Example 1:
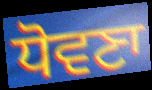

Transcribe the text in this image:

ਧੋਵਣਾ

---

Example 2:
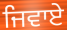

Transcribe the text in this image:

ਜਿਵਾਏ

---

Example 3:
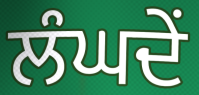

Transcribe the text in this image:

ਲੰਘਦੇਂ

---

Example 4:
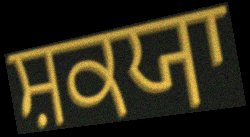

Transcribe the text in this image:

ਸ਼ਕਯਾ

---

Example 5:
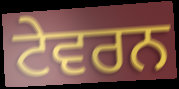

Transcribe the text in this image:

ਟੇਵਰਨ